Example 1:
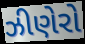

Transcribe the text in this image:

ઝીણેરો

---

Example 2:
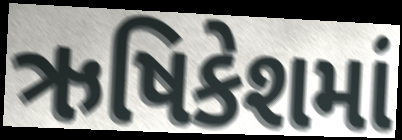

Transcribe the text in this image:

ઋષિકેશમાં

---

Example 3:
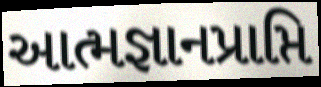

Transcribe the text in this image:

આત્મજ્ઞાનપ્રાપ્તિ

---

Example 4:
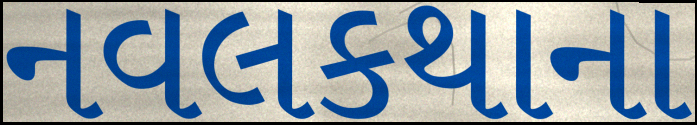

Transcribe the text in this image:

નવલકથાના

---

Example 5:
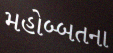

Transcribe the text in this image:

મહોબ્બતના